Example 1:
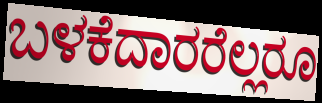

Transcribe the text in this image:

ಬಳಕೆದಾರರೆಲ್ಲರೂ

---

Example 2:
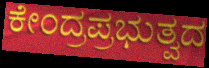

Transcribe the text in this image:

ಕೇಂದ್ರಪ್ರಭುತ್ವದ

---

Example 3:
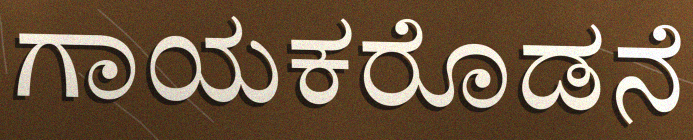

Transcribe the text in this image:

ಗಾಯಕರೊಡನೆ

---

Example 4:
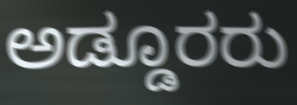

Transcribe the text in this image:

ಅಡ್ಡೂರರು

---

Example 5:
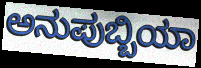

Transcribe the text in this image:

ಅನುಪುಬ್ಬಿಯಾ